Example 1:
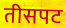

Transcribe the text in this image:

तीसपट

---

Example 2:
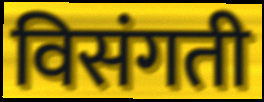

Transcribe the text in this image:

विसंगती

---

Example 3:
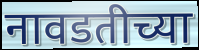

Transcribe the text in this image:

नावडतीच्या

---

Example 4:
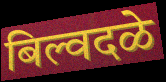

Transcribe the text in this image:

बिल्वदळे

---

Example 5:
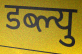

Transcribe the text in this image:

डब्ल्यु